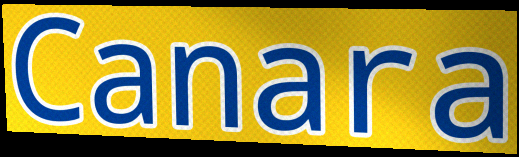
Canara